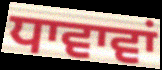
ਧਾਵਾਵਾਂ